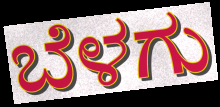
ಬೆಳಗು